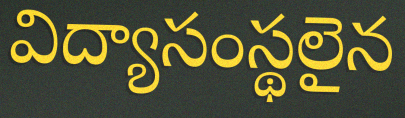
విద్యాసంస్థలైన